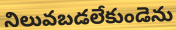
నిలువబడలేకుండెను